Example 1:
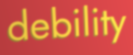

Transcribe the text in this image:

debility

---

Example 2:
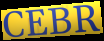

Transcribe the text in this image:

CEBR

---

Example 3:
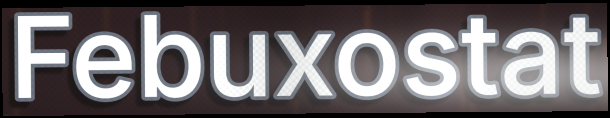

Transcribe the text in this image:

Febuxostat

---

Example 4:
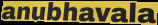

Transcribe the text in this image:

anubhavala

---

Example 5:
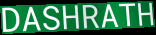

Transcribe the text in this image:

DASHRATH